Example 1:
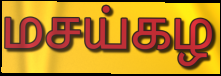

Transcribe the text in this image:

மசய்கழ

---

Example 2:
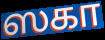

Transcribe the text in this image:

ஸகா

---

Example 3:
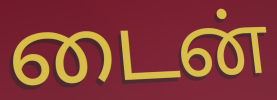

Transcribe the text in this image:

டைன்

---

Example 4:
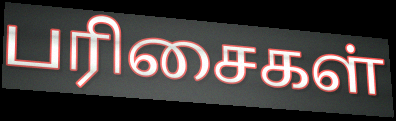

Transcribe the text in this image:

பரிசைகள்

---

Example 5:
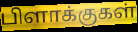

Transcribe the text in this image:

பிளாக்குகள்